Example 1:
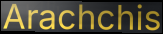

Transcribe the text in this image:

Arachchis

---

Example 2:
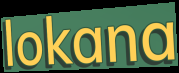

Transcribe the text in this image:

lokana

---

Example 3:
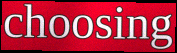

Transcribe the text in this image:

choosing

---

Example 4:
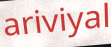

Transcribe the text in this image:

ariviyal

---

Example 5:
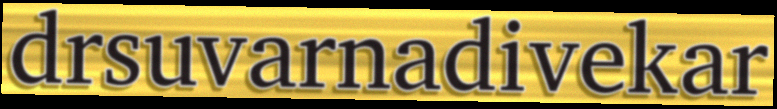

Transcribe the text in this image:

drsuvarnadivekar